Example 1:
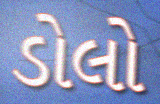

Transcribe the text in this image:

ડોલો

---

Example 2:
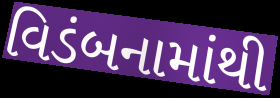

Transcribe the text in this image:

વિડંબનામાંથી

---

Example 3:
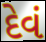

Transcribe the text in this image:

દેવં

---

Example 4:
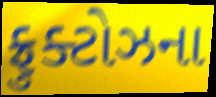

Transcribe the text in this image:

ફ્રુક્ટોઝના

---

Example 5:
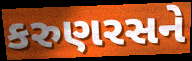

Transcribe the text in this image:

કરુણરસને